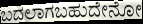
ಬದಲಾಗಬಹುದೇನೋ